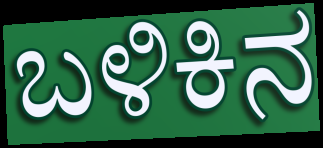
ಬಳಿಕಿನ